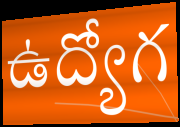
ఉద్యోగ